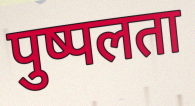
पुष्पलता